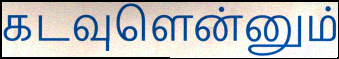
கடவுளென்னும்